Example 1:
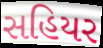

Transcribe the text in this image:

સહિયર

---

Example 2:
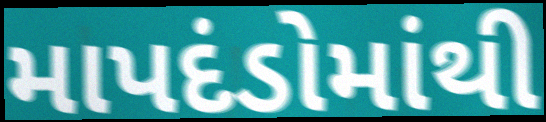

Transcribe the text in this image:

માપદંડોમાંથી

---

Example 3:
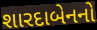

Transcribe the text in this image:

શારદાબેનનો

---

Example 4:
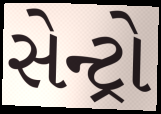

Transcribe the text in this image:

સેન્ટ્રો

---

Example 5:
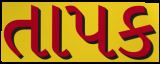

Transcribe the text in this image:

તાપક